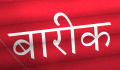
बारीक